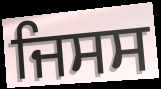
ਜਿਸਸ